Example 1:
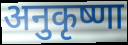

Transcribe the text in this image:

अनुकृष्णा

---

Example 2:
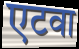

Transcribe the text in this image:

एटवा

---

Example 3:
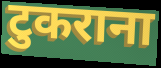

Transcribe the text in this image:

टुकराना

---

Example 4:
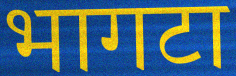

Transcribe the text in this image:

भागटा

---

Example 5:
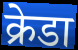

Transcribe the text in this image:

क्रेडा